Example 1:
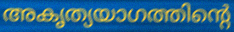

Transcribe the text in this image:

അകൃത്യയാഗത്തിന്റെ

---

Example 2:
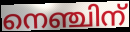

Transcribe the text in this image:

നെഞ്ചിന്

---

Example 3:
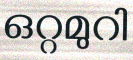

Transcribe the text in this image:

ഒറ്റമുറി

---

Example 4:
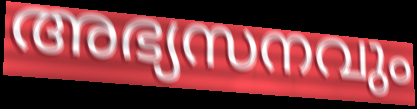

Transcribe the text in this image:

അഭ്യസനവും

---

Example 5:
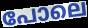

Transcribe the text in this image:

പോലെ